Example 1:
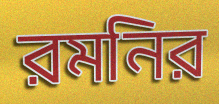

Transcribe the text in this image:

রমনির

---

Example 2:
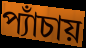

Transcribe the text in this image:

প্যাঁচায়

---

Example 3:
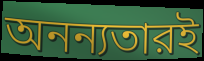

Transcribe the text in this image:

অনন্যতারই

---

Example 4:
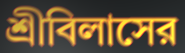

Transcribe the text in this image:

শ্রীবিলাসের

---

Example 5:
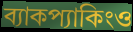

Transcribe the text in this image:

ব্যাকপ্যাকিংও